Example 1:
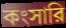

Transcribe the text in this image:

কংসারি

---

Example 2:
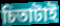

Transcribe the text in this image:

চিতাটাই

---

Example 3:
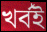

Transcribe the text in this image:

খর্বই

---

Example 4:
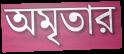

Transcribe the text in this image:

অমৃতার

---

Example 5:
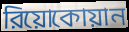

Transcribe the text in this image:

রিয়োকোয়ান